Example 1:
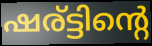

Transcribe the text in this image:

ഷര്ട്ടിന്റെ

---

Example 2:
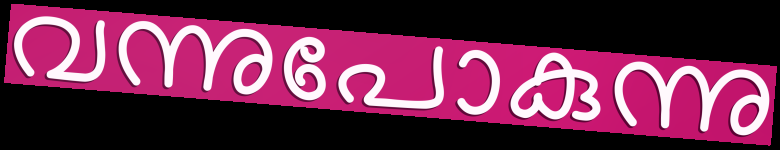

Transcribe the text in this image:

വന്നുപോകുന്നു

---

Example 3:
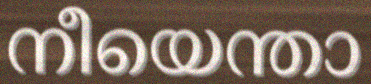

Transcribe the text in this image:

നീയെന്താ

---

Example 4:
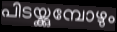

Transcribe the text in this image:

പിടയ്ക്കുമ്പോഴും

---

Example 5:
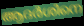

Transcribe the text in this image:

ആദർശിനെ